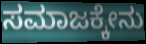
ಸಮಾಜಕ್ಕೇನು